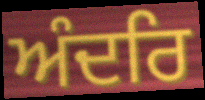
ਅੰਦਰਿ